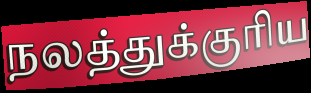
நலத்துக்குரிய